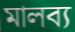
মালব্য